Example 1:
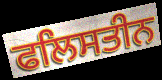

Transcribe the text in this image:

ਫਲਿਸਤੀਨ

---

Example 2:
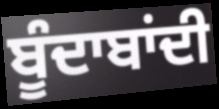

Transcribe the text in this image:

ਬੂੰਦਾਬਾਂਦੀ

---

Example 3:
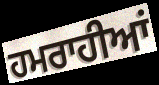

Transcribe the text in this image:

ਹਮਰਾਹੀਆਂ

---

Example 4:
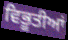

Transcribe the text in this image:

ਵਿਭੂਤੀਆਂ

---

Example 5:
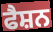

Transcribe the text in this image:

ਫੈਸ਼ਨ